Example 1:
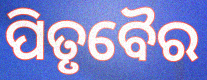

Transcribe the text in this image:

ପିତୃବୈର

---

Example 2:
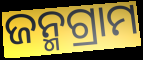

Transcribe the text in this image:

ଜନ୍ମଗ୍ରାମ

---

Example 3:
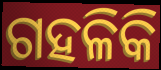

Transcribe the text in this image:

ଗହଳିକି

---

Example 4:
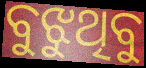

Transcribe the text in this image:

ବୁଝୁଥିବୁ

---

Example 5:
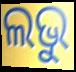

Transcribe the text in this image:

ଲଭୁ